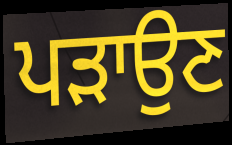
ਪੜਾਉਣ